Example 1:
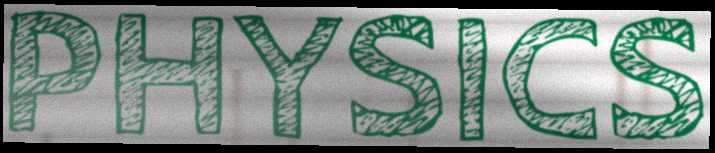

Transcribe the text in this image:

PHYSICS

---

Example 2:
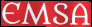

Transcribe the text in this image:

EMSA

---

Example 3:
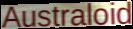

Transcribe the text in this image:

Australoid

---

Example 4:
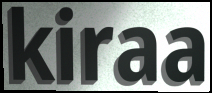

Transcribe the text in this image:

kiraa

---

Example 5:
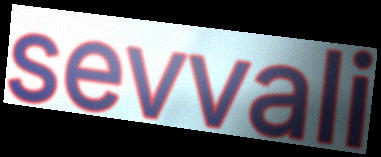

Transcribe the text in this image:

sevvali